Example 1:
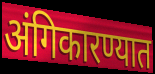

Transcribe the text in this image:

अंगिकारण्यात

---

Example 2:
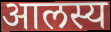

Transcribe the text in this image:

आलस्य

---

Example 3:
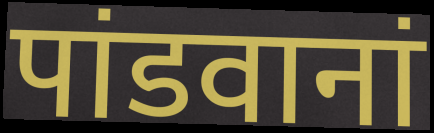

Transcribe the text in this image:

पांडवानां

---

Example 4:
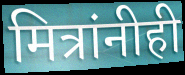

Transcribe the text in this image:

मित्रांनीही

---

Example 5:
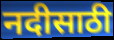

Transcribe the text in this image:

नदीसाठी